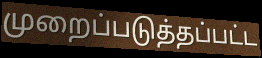
முறைப்படுத்தப்பட்ட